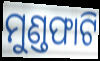
ମୁଣ୍ଡଫାଟି